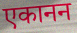
एकानन